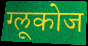
ग्लूकोज